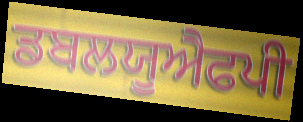
ਡਬਲਯੂਐਫਪੀ